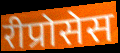
रीप्रोसेस